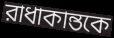
রাধাকান্তকে